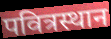
पवित्रस्‍थान